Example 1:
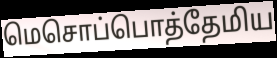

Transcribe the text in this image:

மெசொப்பொத்தேமிய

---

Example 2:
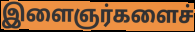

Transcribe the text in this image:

இளைஞர்களைச்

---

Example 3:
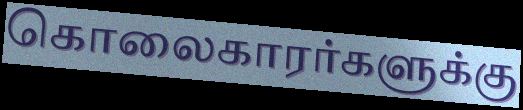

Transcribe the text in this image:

கொலைகாரர்களுக்கு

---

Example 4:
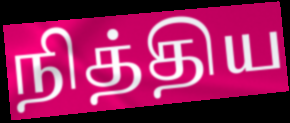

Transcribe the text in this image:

நித்திய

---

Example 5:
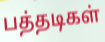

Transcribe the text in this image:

பத்தடிகள்